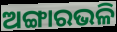
ଅଙ୍ଗାରଭଳି